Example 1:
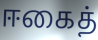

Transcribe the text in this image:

ஈகைத்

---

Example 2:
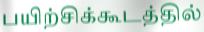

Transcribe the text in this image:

பயிற்சிக்கூடத்தில்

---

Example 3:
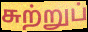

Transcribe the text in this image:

சுற்றுப்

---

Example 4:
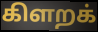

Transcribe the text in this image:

கிளறக்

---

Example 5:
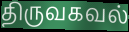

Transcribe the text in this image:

திருவகவல்